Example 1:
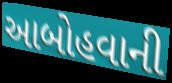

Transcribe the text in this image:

આબોહવાની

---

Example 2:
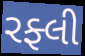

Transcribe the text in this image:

રફ્લી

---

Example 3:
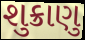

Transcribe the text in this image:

શુક્રાણુ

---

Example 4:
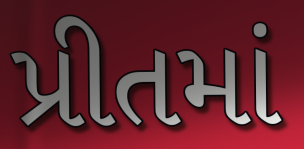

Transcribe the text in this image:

પ્રીતમાં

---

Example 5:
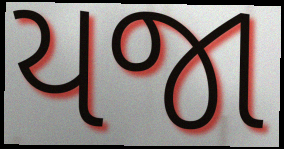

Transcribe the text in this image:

યજા